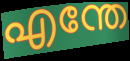
എന്തേ